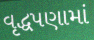
વૃદ્ધપણામાં